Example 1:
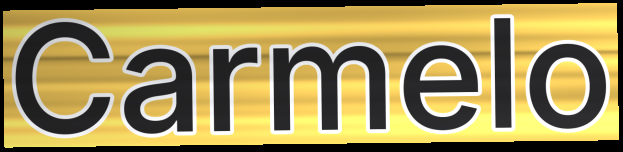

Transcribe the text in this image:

Carmelo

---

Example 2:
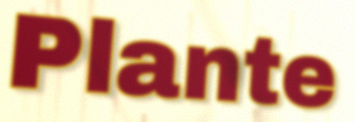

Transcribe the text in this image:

Plante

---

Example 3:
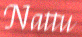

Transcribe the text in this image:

Nattu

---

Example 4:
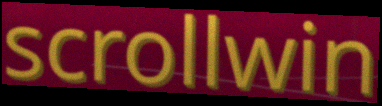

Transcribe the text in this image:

scrollwin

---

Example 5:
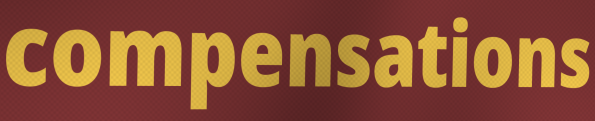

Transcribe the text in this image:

compensations